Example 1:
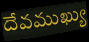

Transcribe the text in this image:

దేవముఖ్యు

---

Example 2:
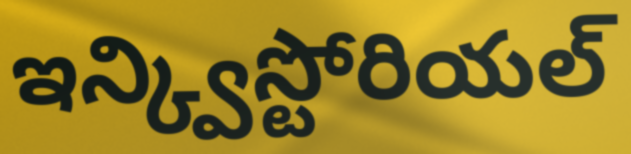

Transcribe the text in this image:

ఇన్క్విస్టోరియల్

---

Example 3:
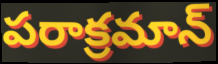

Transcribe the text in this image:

పరాక్రమాన్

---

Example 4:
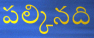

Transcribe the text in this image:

పల్కినది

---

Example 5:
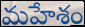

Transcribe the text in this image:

మహేశం